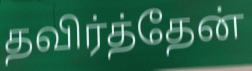
தவிர்த்தேன்